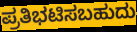
ಪ್ರತಿಭಟಿಸಬಹುದು